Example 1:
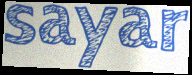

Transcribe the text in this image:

sayar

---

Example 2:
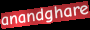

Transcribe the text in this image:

anandghare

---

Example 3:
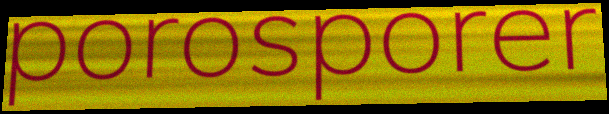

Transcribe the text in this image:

porosporer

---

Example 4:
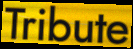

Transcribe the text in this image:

Tribute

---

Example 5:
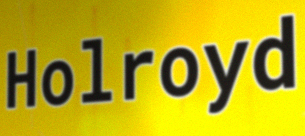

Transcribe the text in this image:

Holroyd